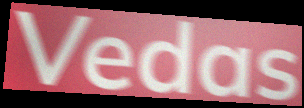
Vedas